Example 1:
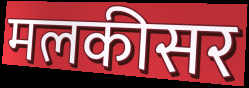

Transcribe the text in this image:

मलकीसर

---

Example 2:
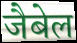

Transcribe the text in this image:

जैबेल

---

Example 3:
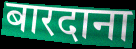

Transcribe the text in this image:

बारदाना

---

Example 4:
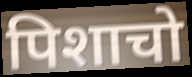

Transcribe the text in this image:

पिशाचो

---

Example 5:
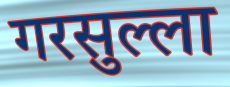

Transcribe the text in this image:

गरसुल्ला